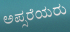
ಅಪ್ಸರೆಯರು